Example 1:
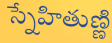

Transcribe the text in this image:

స్నేహితుణ్ణి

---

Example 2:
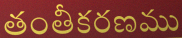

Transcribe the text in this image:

తంతీకరణము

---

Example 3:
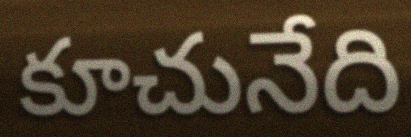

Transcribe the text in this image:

కూచునేది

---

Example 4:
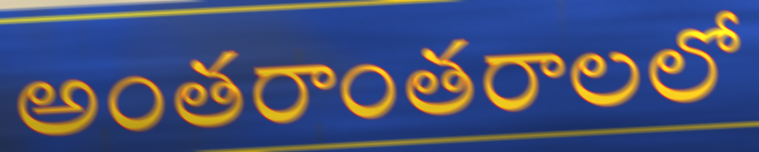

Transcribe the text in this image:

అంతరాంతరాలలో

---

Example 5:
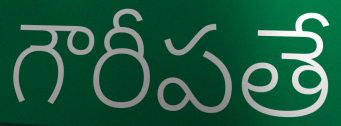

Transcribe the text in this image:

గౌరీపతే